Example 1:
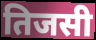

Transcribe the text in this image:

तिजसी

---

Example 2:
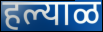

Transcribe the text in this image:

हल्याळ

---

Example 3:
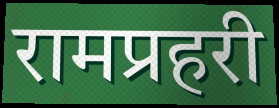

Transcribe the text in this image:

रामप्रहरी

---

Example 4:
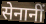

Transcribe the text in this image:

सेनानीं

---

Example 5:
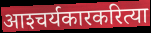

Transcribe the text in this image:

आश्‍चर्यकारकरित्या